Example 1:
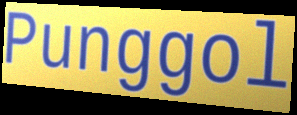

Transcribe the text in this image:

Punggol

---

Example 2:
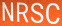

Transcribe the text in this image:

NRSC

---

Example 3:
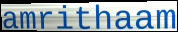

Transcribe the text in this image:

amrithaam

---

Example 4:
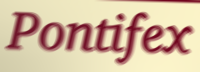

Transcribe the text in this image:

Pontifex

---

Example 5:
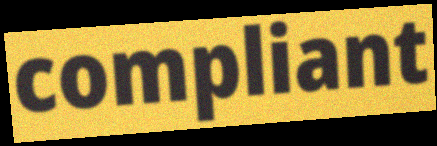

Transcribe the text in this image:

compliant